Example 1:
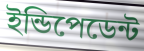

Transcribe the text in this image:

ইন্ডিপেডেন্ট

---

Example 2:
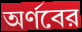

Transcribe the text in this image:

অর্ণবের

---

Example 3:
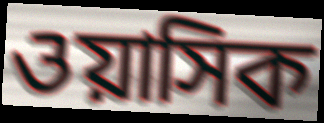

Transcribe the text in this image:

ওয়াসিক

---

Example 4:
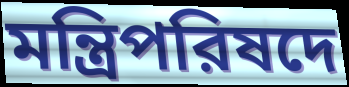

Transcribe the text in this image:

মন্ত্রিপরিষদে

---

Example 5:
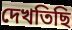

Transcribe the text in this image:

দেখতিছি